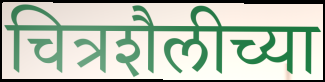
चित्रशैलीच्या